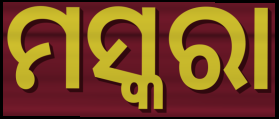
ମସ୍କରା